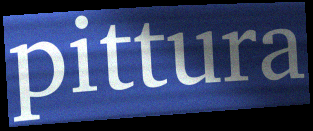
pittura